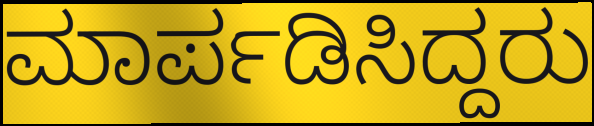
ಮಾರ್ಪಡಿಸಿದ್ದರು